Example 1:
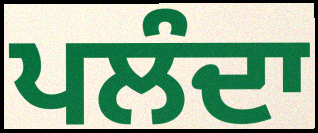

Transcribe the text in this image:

ਪਲੰਦਾ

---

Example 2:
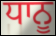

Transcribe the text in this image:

ਧਾਨੂ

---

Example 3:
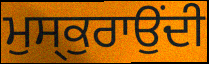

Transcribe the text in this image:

ਮੁਸ੍ਕੁਰਾਉਂਦੀ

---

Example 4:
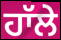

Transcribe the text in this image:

ਹਾੱਲੇ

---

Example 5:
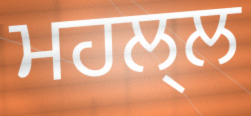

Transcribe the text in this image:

ਮਹਲ੍ਲ